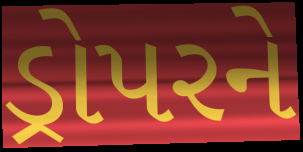
ડ્રોપરને